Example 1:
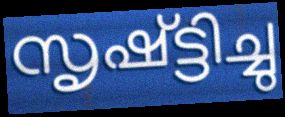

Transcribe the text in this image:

സൃഷ്ട്ടിച്ചു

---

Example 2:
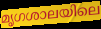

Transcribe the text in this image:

മൃഗശാലയിലെ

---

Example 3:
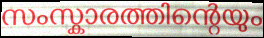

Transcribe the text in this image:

സംസ്കാരത്തിന്റെയും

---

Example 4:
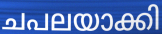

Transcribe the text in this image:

ചപലയാക്കി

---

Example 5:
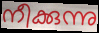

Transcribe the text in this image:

നീക്കുന്നു